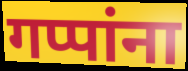
गप्पांना